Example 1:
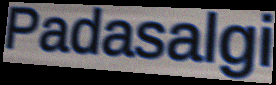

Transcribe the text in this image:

Padasalgi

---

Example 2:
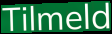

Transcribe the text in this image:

Tilmeld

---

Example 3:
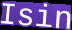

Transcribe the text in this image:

Isin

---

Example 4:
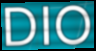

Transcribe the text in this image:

DIO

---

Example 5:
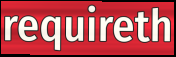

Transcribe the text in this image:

requireth